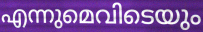
എന്നുമെവിടെയും